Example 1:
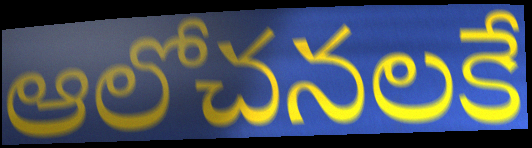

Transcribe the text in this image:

ఆలోచనలకే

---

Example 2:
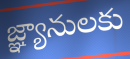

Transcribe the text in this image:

జ్ఞ్యానులకు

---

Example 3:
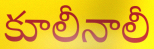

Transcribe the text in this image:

కూలీనాలీ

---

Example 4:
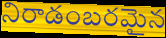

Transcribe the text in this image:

నిరాడంబరమైన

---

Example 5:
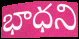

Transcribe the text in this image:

భాధని